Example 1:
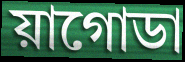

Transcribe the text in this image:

য়াগোডা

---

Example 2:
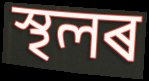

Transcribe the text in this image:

স্থলৰ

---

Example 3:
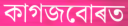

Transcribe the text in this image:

কাগজবোৰত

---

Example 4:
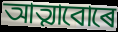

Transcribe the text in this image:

আত্মাবোৰে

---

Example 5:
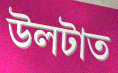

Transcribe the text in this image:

উলটাত